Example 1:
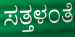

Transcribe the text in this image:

ಸತ್ತಳಂತೆ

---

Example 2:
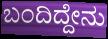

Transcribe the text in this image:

ಬಂದಿದ್ದೇನು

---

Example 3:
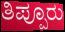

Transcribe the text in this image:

ತಿಪ್ಪೂರು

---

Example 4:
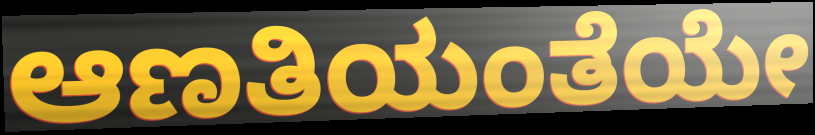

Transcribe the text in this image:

ಆಣತಿಯಂತೆಯೇ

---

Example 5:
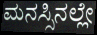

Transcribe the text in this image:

ಮನಸ್ಸಿನಲ್ಲೇ